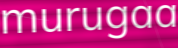
murugaa